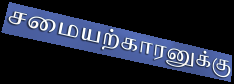
சமையற்காரனுக்கு